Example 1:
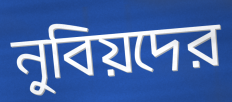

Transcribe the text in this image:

নুবিয়দের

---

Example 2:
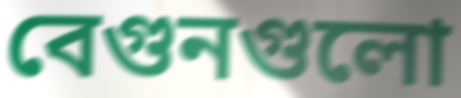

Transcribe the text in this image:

বেগুনগুলো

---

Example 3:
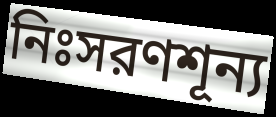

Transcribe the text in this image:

নিঃসরণশূন্য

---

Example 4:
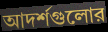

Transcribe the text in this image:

আদর্শগুলোর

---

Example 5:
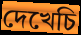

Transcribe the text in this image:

দেখেচি